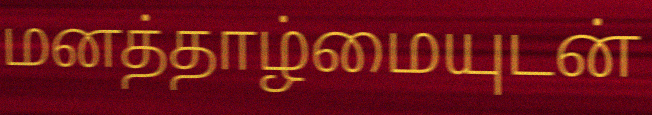
மனத்தாழ்மையுடன்